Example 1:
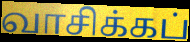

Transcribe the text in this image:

வாசிக்கப்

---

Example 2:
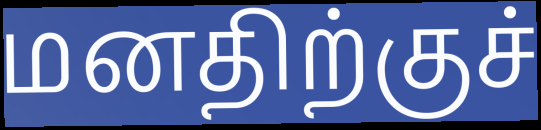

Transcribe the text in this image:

மனதிற்குச்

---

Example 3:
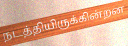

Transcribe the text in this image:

நடத்தியிருக்கின்றன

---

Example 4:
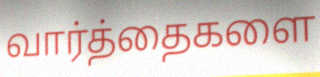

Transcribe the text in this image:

வார்த்தைகளை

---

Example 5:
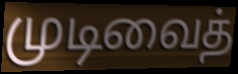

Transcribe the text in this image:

முடிவைத்